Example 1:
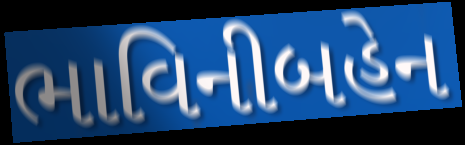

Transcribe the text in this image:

ભાવિનીબહેન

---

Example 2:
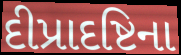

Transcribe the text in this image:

દીપ્રાદષ્ટિના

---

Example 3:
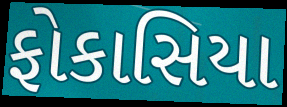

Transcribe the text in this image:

ફોકાસિયા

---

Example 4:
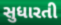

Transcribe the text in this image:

સુધારતી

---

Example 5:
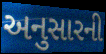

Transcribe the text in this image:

અનુસારની